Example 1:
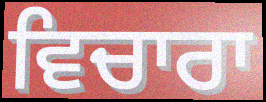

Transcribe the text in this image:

ਵਿਚਾਰਾ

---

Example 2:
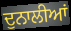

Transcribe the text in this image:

ਦੁਨਾਲੀਆਂ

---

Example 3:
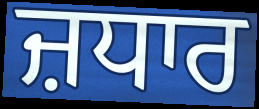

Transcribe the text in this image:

ਜ਼ਧਾਰ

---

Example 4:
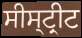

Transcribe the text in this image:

ਸੀਸ੍ਟ੍ਰੀਟ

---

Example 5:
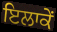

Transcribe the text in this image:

ਇਲਾਕੇਂ